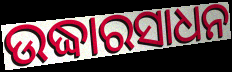
ଉଦ୍ଧାରସାଧନ